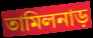
তামিলনাড়